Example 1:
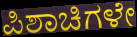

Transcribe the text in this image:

ಪಿಶಾಚಿಗಳೇ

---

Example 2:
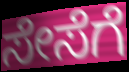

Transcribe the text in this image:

ಸೇಸೆಗೆ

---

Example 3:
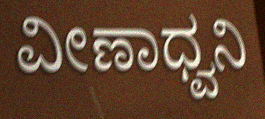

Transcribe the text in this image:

ವೀಣಾಧ್ವನಿ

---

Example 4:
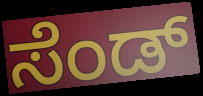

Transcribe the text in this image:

ಸೆಂಡ್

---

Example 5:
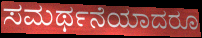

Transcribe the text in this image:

ಸಮರ್ಥನೆಯಾದರೂ